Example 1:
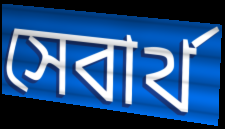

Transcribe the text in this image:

সেবার্থ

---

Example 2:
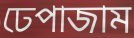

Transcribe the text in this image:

ঢেপাজাম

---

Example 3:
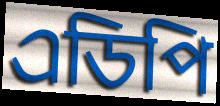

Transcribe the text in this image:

এডিপি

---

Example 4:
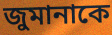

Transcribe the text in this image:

জুমানাকে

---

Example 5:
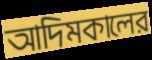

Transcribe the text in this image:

আদিমকালের